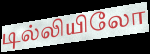
டில்லியிலோ